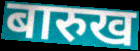
बारुख